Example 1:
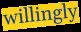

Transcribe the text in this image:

willingly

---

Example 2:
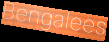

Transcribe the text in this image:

Bengalees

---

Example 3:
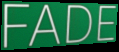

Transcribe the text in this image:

FADE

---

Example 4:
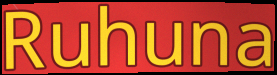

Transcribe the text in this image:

Ruhuna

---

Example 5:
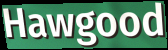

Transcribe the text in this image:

Hawgood